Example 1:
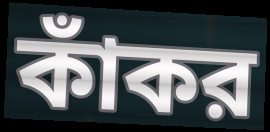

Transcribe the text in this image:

কাঁকর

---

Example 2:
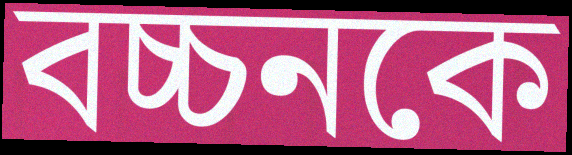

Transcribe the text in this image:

বচ্চনকে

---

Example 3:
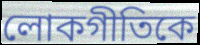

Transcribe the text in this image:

লোকগীতিকে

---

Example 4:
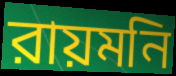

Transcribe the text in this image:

রায়মনি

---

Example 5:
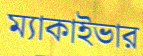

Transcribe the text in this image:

ম্যাকাইভার